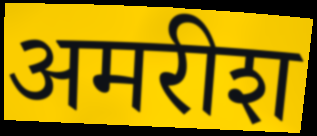
अमरीश